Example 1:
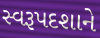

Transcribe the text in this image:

સ્વરૂપદશાને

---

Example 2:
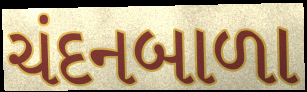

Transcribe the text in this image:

ચંદનબાળા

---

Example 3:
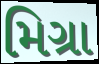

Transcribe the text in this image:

મિગ્રા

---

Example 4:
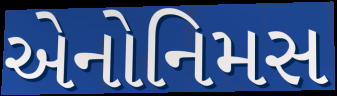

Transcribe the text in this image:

એનોનિમસ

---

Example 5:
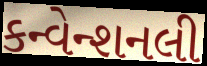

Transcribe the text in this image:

કન્વેન્શનલી